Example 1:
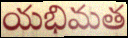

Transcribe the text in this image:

యభిమత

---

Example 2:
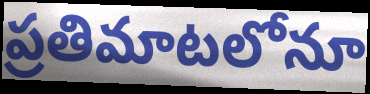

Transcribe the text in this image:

ప్రతిమాటలోనూ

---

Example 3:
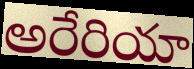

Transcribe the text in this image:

అరేరియా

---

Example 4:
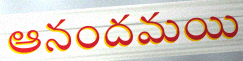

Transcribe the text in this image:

ఆనందమయి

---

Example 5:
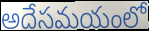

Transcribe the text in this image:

అదేసమయంలో